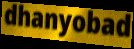
dhanyobad